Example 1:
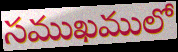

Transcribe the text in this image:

సముఖములో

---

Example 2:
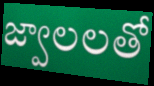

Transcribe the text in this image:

జ్వాలలతో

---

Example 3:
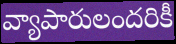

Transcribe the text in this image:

వ్యాపారులందరికీ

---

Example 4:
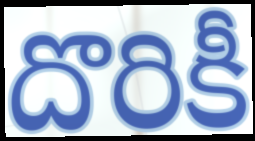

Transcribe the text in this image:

దొరికీ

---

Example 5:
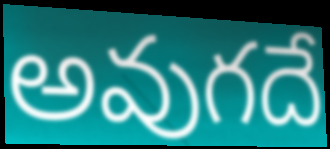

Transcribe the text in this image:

అవుగదే